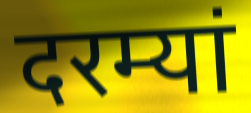
दरम्यां